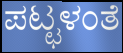
ಪಟ್ಟಳಂತೆ